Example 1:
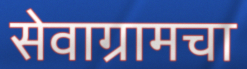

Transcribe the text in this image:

सेवाग्रामचा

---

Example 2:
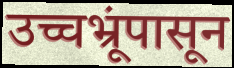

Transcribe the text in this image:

उच्चभ्रूंपासून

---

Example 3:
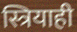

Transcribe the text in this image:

स्त्रियाही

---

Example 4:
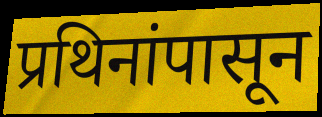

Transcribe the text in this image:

प्रथिनांपासून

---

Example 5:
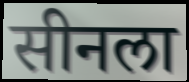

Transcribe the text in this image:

सीनला